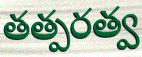
తత్పరత్వ